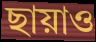
ছায়াও